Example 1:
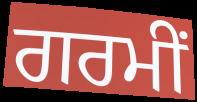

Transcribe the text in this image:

ਗਰਮੀਂ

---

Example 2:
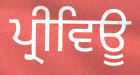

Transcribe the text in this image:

ਪ੍ਰੀਵਿਊ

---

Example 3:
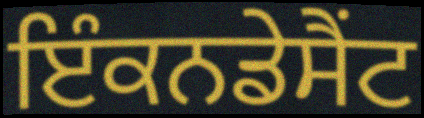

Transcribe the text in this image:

ਇੰਕਨਡੇਸੈਂਟ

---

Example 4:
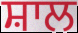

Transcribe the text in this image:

ਸ਼ਾਲ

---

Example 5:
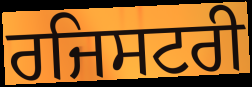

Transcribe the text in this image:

ਰਜਿਸਟਰੀ